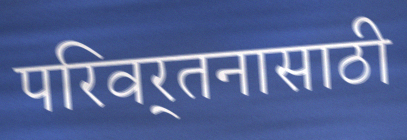
परिवर्तनासाठी